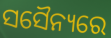
ସସୈନ୍ୟରେ